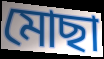
মোছা